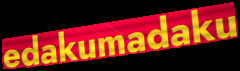
edakumadaku